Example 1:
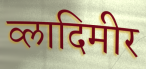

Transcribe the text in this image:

व्लादिमीर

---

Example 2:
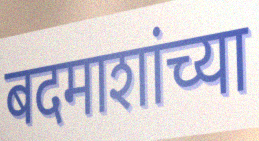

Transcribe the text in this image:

बदमाशांच्या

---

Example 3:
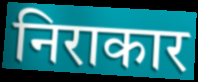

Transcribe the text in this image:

निराकार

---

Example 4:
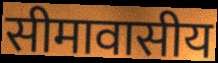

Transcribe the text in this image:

सीमावासीय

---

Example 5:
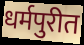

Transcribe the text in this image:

धर्मपुरीत